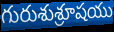
గురుశుశ్రూషయు